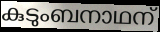
കുടുംബനാഥന്